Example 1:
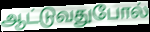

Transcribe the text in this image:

ஆட்டுவதுபோல்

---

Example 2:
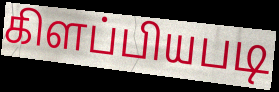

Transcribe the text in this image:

கிளப்பியபடி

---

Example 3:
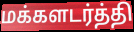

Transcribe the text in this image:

மக்களடர்த்தி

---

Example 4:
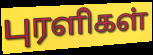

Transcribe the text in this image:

புரளிகள்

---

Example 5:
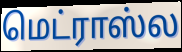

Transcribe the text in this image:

மெட்ராஸ்ல